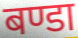
बण्डा